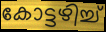
കോട്ടഴിച്ച്